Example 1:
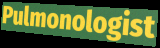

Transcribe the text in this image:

Pulmonologist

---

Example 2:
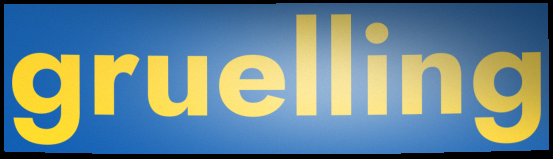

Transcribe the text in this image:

gruelling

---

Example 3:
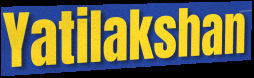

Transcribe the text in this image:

Yatilakshan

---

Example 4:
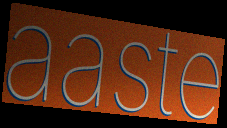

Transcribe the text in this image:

aaste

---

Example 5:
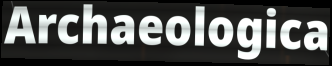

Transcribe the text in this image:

Archaeologica